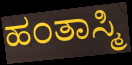
ಹಂತಾಸ್ಮಿ